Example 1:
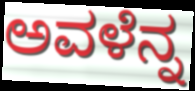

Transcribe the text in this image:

ಅವಳೆನ್ನ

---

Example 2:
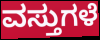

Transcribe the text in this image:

ವಸ್ತುಗಳೆ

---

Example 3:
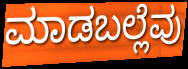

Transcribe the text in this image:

ಮಾಡಬಲ್ಲೆವು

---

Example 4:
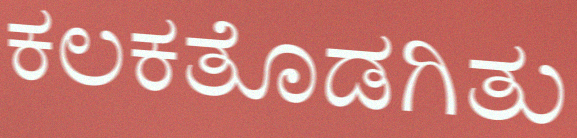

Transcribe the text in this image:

ಕಲಕತೊಡಗಿತು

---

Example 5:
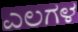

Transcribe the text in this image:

ಎಲಗಳ